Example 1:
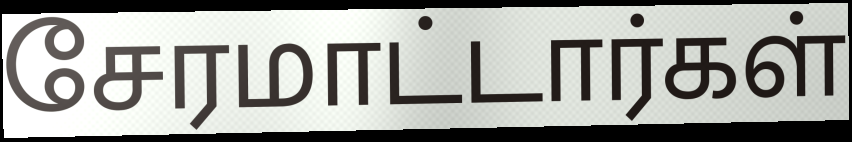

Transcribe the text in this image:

சேரமாட்டார்கள்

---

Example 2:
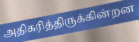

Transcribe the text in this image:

அதிகரித்திருக்கின்றன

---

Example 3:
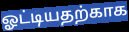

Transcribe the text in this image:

ஓட்டியதற்காக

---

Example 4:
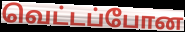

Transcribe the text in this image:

வெட்டப்போன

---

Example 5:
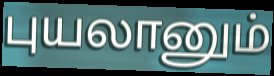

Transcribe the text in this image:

புயலானும்